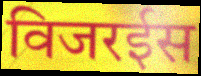
विजरईस